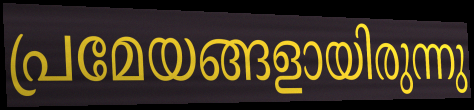
പ്രമേയങ്ങളായിരുന്നു